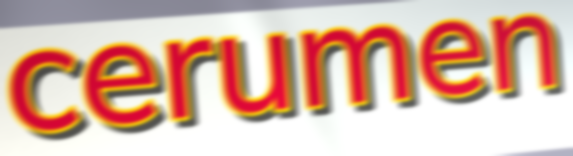
cerumen